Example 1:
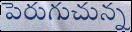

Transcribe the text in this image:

పెరుగుచున్న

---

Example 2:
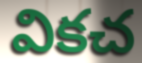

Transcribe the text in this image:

వికచ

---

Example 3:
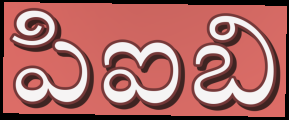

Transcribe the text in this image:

పిఐబి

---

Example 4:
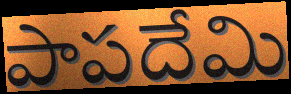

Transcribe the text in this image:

పాపదేమి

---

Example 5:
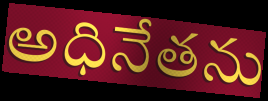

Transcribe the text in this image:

అధినేతను